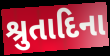
શ્રુતાદિના